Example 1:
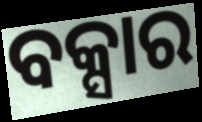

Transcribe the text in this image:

ବକ୍ସାର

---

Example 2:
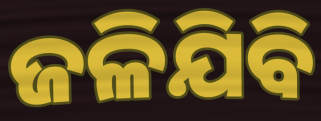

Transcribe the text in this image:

ଜଳିଯିବି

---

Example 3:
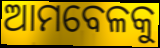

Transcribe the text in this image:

ଆମବେଳକୁ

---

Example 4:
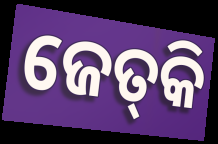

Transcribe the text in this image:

ଜେତ୍‌କି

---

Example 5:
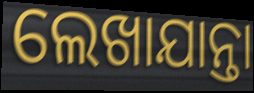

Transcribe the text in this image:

ଲେଖାଯାନ୍ତା